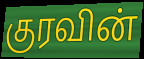
குரவின்